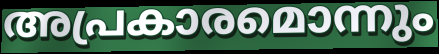
അപ്രകാരമൊന്നും